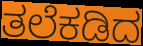
ತಲೆಕಡಿದ